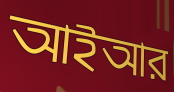
আইআর